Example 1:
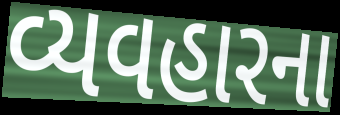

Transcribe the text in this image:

વ્યવહારના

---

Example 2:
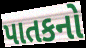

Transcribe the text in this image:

પાતકનો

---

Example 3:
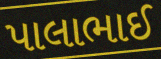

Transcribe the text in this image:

પાલાભાઈ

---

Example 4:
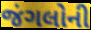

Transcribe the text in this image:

જંગલોની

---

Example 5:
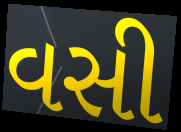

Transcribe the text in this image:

વસી